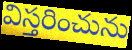
విస్తరించును